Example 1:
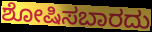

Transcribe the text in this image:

ಶೋಷಿಸಬಾರದು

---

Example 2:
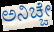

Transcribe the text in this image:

ಅನಿಚ್ಚೇ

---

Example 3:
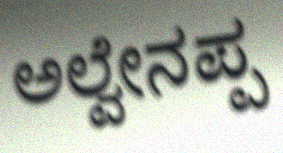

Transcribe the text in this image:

ಅಲ್ವೇನಪ್ಪ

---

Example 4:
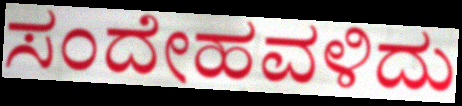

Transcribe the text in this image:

ಸಂದೇಹವಳಿದು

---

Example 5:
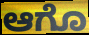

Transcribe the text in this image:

ಆಗೊ